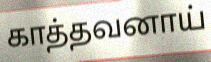
காத்தவனாய்